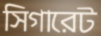
সিগারেট